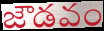
జౌడవం